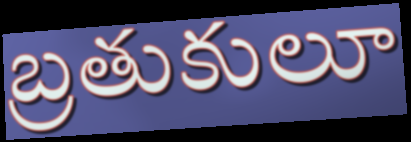
బ్రతుకులూ